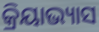
କ୍ରିୟାଭ୍ୟାସ